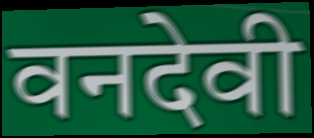
वनदेवी